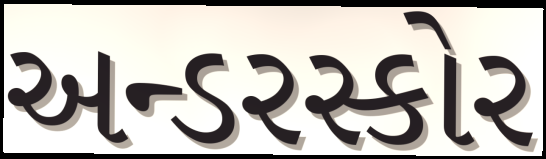
અન્ડરસ્કોર